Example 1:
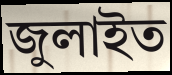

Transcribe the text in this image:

জুলাইত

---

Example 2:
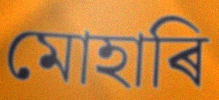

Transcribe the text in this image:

মোহাৰি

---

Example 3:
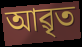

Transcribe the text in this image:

আৱৃত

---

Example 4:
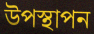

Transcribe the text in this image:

উপস্থাপন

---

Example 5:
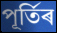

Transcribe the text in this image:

পূৰ্তিৰ